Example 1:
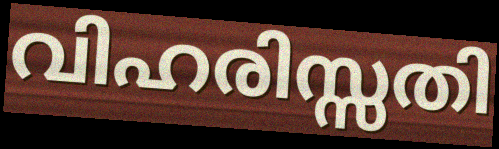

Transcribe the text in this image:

വിഹരിസ്സതി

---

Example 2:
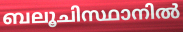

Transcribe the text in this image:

ബലൂചിസ്ഥാനിൽ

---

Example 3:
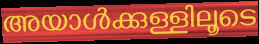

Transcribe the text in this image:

അയാൾക്കുള്ളിലൂടെ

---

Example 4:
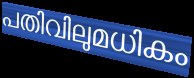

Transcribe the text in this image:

പതിവിലുമധികം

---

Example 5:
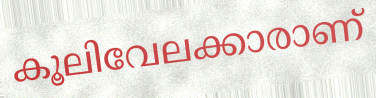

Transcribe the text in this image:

കൂലിവേലക്കാരാണ്